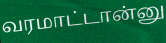
வரமாட்டான்னு